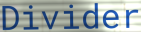
Divider